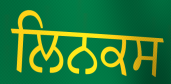
ਲਿਨਕਸ